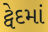
ટ્વેદમાં